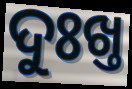
ଦୁଃଖ୍ତ